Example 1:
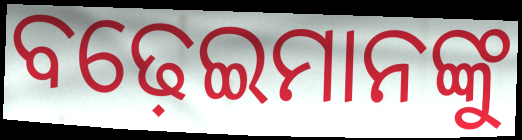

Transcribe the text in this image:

ବଢ଼େଇମାନଙ୍କୁ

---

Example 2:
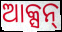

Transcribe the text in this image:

ଆକ୍ସନ୍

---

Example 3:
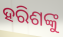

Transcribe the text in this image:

ହରିଶଙ୍କୁ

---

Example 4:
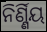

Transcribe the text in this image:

ନିର୍ଣ୍ଣିୟ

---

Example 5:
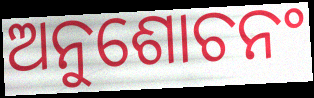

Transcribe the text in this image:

ଅନୁଶୋଚନଂ